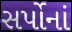
સર્પોનાં